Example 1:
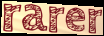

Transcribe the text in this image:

rarer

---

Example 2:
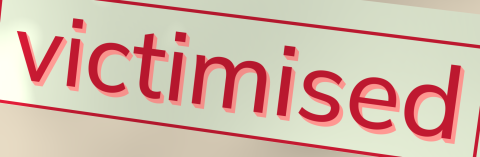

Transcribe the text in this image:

victimised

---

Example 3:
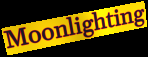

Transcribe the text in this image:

Moonlighting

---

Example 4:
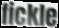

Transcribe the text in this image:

fickle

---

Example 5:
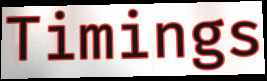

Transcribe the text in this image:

Timings